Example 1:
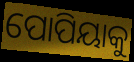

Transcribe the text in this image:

ପୋପିୟାକୁ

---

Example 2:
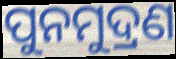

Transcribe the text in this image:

ପୁନମୁଦ୍ରଣ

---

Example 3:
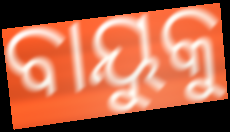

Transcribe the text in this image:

ବାୟୁକୁ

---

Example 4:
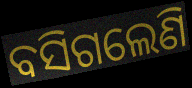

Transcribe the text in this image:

ବସିଗଲେଣି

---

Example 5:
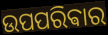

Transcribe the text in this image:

ଉପପରିଵାର